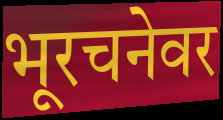
भूरचनेवर